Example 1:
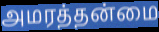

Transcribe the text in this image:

அமரத்தன்மை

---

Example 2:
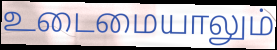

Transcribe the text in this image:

உடைமையாலும்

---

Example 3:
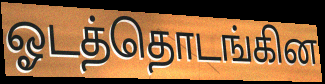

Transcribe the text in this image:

ஓடத்தொடங்கின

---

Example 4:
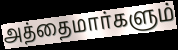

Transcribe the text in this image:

அத்தைமார்களும்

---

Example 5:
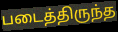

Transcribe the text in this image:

படைத்திருந்த